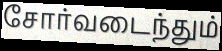
சோர்வடைந்தும்